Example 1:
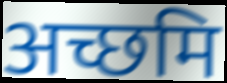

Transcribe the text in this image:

अच्छमि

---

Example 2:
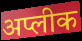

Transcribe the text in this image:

अप्लीक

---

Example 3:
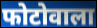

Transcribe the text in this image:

फोटोवाला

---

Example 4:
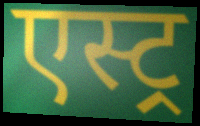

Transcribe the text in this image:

एस्ट्र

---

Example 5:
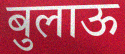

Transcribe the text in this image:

बुलाऊ